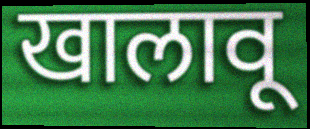
खालावू